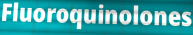
Fluoroquinolones